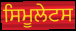
ਸਿਮੂਲੇਟਸ